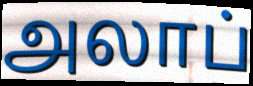
அலாப்